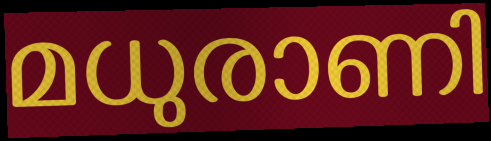
മധുരാണി